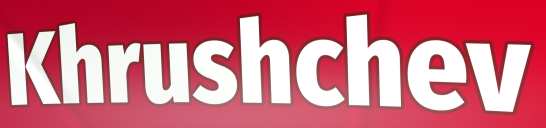
Khrushchev